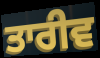
ਤਾਰੀਵ